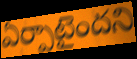
ఏర్పాటైందని